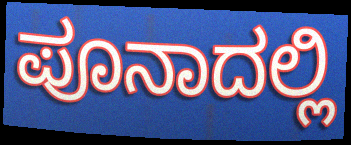
ಪೂನಾದಲ್ಲಿ